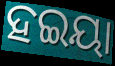
ହଇୟା